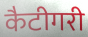
कैटीगरी